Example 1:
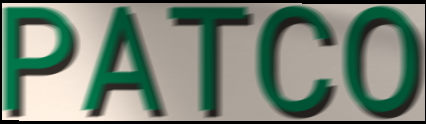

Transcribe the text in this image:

PATCO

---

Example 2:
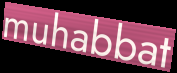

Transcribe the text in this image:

muhabbat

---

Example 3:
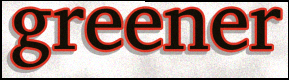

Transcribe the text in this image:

greener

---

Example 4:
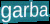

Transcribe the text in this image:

garba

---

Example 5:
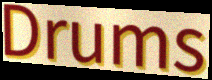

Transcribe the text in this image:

Drums